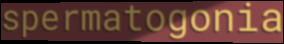
spermatogonia